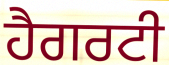
ਹੈਗਰਟੀ